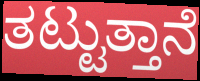
ತಟ್ಟುತ್ತಾನೆ